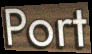
Port